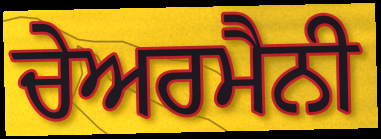
ਚੇਅਰਮੈਨੀ